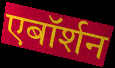
एबॉर्शन